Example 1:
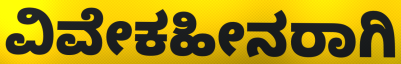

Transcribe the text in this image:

ವಿವೇಕಹೀನರಾಗಿ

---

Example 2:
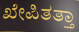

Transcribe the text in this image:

ಖೇಪಿತತ್ತಾ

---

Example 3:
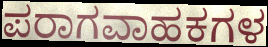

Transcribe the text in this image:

ಪರಾಗವಾಹಕಗಳ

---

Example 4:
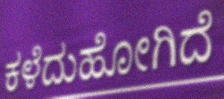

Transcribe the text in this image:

ಕಳೆದುಹೋಗಿದೆ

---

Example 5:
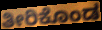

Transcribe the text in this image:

ತೀರಿಕೊಂಡ